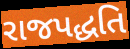
રાજપદ્ધતિ